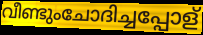
വീണ്ടുംചോദിച്ചപ്പോള്